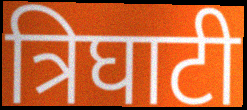
त्रिघाटी